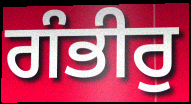
ਗੰਭੀਰੁ